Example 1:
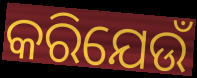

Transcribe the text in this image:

କରିଯେଉଁ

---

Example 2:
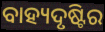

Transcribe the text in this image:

ବାହ୍ୟଦୃଷ୍ଟିର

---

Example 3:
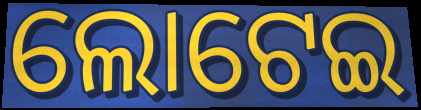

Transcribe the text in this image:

ଲୋଟେଇ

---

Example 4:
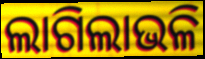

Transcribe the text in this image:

ଲାଗିଲାଭଳି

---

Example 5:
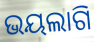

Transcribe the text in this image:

ଭୟଲାଗି